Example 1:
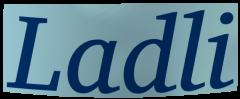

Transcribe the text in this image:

Ladli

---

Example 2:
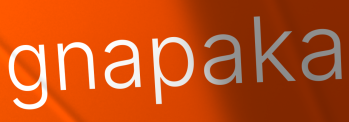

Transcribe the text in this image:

gnapaka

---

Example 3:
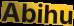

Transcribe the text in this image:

Abihu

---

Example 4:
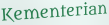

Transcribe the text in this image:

Kementerian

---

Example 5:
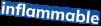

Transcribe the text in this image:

inflammable